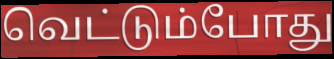
வெட்டும்போது